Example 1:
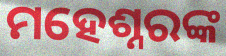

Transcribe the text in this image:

ମହେଶ୍ନରଙ୍କ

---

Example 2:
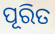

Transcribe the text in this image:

ପୂରିତ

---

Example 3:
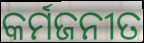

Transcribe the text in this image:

କର୍ମଜନୀତ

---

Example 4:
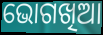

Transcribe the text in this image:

ଭୋଗଖିଆ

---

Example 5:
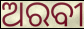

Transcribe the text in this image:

ଅରବୀ